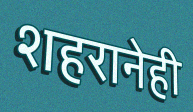
शहरानेही